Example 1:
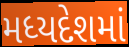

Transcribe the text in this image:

મધ્યદેશમાં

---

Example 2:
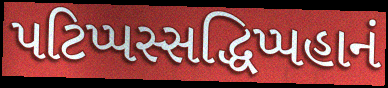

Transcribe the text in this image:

પટિપ્પસ્સદ્ધિપ્પહાનં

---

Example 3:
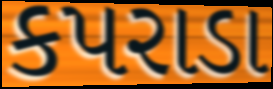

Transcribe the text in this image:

કપરાડા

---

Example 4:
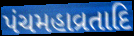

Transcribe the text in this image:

પંચમહાવ્રતાદિ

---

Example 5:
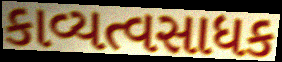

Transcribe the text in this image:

કાવ્યત્વસાધક